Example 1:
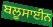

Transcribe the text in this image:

ਬਲੂਸਾਈਨ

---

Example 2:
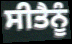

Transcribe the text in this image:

ਸੀਤੈਨੂੰ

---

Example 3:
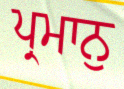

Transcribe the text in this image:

ਪ੍ਰਮਾਨੁ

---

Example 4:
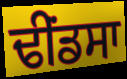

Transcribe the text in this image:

ਢੀੰਂਡਸਾ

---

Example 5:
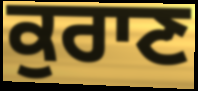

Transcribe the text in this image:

ਕੁਰਾਣ